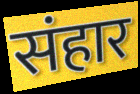
संहार